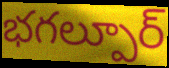
భగల్పూర్